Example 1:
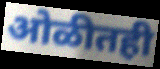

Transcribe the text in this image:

ओळीतही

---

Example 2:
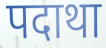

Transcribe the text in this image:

पदाथा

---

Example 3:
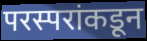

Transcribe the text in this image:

परस्परांकडून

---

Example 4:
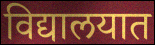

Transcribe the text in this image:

विद्यालयात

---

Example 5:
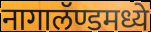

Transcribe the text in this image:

नागालॅण्डमध्ये